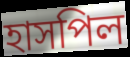
হাসপিল